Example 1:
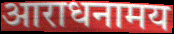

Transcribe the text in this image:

आराधनामय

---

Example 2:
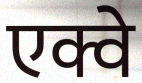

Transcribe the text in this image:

एक्वे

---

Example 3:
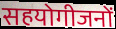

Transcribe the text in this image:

सहयोगीजनों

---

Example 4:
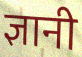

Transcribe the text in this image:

ज्ञानी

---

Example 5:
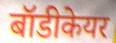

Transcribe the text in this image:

बॉडीकेयर